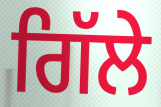
ਗਿੱਲੇ